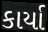
કાર્યા